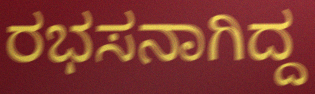
ರಭಸನಾಗಿದ್ದ